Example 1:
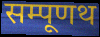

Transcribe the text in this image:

सम्पूणथ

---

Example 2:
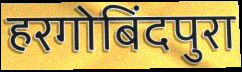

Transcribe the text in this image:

हरगोबिंदपुरा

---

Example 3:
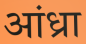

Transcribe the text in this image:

आंध्रा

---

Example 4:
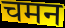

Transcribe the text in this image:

चमन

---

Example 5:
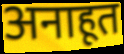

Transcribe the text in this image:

अनाहूत